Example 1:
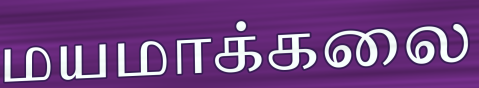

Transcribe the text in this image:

மயமாக்கலை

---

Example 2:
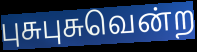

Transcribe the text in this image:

புசுபுசுவென்ற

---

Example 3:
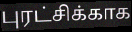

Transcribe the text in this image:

புரட்சிக்காக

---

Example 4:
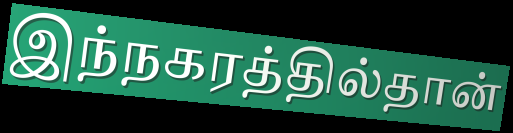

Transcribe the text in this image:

இந்நகரத்தில்தான்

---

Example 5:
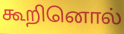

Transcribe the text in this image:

கூறினொல்